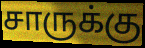
சாருக்கு